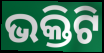
ଭକ୍ତିଟି